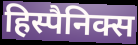
हिस्पैनिक्स